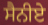
ਸੈਨੀਏ